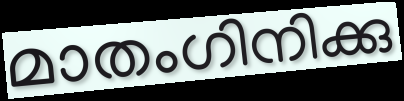
മാതംഗിനിക്കു